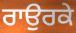
ਰਾਉਰਕੇ